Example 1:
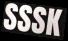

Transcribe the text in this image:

SSSK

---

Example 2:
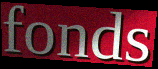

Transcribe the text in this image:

fonds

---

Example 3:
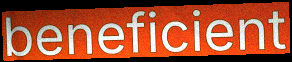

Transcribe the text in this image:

beneficient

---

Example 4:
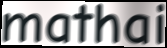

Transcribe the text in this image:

mathai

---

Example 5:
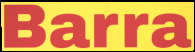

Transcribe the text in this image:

Barra